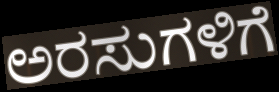
ಅರಸುಗಳಿಗೆ